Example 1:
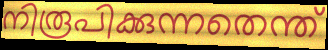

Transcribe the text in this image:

നിരൂപിക്കുന്നതെന്ത്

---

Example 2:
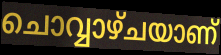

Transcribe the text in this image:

ചൊവ്വാഴ്ചയാണ്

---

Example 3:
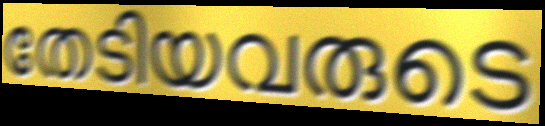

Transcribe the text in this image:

തേടിയവരുടെ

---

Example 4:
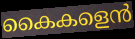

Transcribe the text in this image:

കൈകളെൻ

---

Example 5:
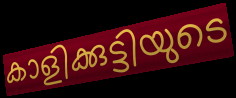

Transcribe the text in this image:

കാളിക്കുട്ടിയുടെ